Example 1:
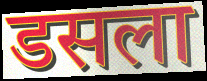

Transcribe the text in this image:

डसला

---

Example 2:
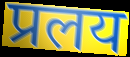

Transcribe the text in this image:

प्रलय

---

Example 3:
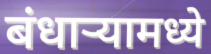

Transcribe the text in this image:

बंधाऱ्यामध्ये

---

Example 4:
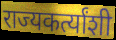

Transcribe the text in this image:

राज्यकर्त्यांशी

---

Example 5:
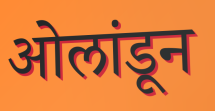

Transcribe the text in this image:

ओलांडून